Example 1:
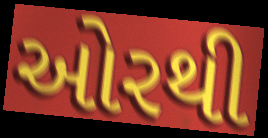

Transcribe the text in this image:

ઓરથી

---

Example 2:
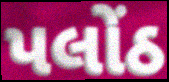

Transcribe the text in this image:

પલોંઠ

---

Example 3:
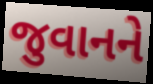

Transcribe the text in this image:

જુવાનને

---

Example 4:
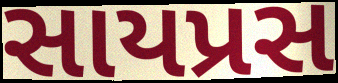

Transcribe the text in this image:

સાયપ્રસ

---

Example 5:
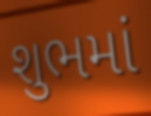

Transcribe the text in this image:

શુભમાં